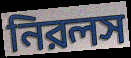
নিরলস